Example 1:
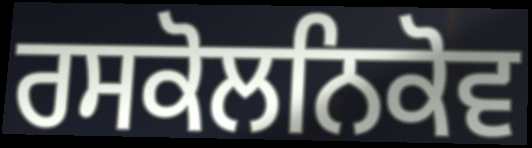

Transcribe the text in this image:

ਰਸਕੋਲਨਿਕੋਵ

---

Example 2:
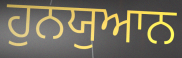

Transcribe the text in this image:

ਹੁਨਯੁਆਨ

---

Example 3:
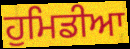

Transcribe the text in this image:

ਹੁਮਿਡੀਆ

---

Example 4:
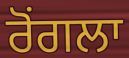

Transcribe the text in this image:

ਰੋਂਗਲਾ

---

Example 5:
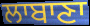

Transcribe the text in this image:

ਲਾਬਾਣਾ